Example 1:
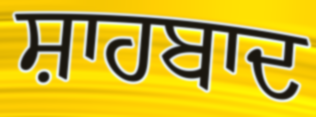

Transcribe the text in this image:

ਸ਼ਾਹਬਾਦ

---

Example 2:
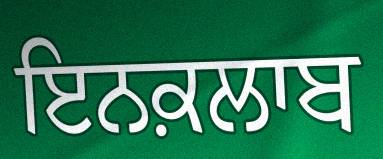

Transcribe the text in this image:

ਇਨਕ਼ਲਾਬ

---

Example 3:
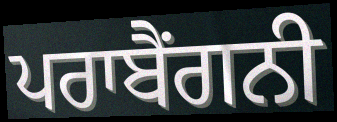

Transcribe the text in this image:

ਪਰਾਬੈਂਗਨੀ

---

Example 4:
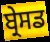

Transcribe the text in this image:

ਬ੍ਰੇਸਡ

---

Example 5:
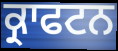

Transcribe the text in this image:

ਕ੍ਰਾਫਟਨ